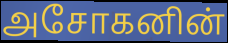
அசோகனின்